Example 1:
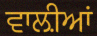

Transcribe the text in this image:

ਵਾਲ਼ੀਆਂ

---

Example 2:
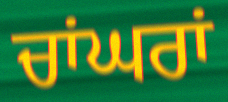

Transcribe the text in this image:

ਚਾਂਘਰਾਂ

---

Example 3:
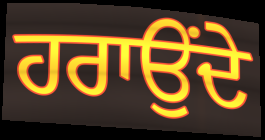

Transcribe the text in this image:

ਹਰਾਉਂਦੇ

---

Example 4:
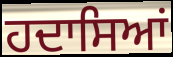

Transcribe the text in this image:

ਹਦਾਸਿਆਂ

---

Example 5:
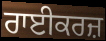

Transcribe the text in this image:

ਰਾਈਕਰਜ਼